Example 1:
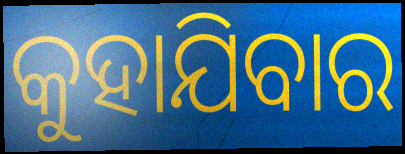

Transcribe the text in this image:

କୁହାଯିବାର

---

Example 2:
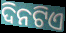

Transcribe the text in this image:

ଦିନଟିଏ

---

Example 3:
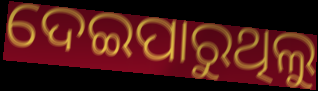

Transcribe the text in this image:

ଦେଇପାରୁଥିଲୁ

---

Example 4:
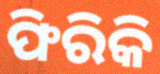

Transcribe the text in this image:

ଫିରିକି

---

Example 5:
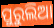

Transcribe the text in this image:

ପୁରୁଲିଆ